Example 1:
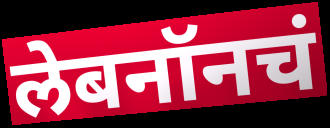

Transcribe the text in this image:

लेबनॉनचं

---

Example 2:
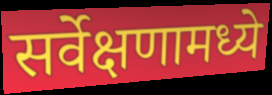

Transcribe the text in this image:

सर्वेक्षणामध्ये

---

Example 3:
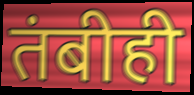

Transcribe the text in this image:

तंबीही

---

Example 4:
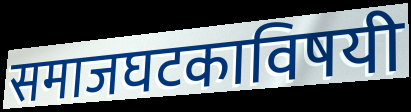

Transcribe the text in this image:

समाजघटकाविषयी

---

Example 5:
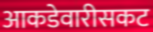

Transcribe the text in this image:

आकडेवारीसकट